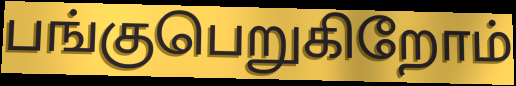
பங்குபெறுகிறோம்